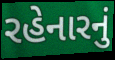
રહેનારનું